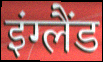
इंग्लैंड